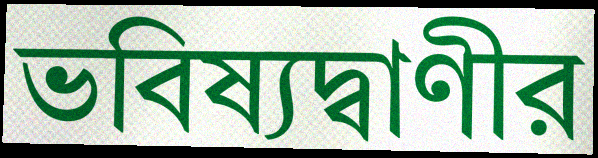
ভবিষ্যদ্বাণীর